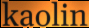
kaolin